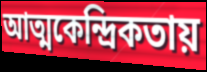
আত্মকেন্দ্রিকতায়